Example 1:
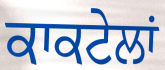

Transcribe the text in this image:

ਕਾਕਟੇਲਾਂ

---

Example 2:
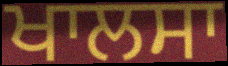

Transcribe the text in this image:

ਖਾਲਸਾ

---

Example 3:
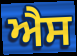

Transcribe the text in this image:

ਐਸ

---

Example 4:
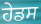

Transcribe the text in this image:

ਹੇਡਸ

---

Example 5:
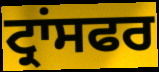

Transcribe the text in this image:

ਟ੍ਰਾਂਸਫਰ